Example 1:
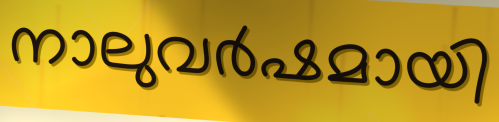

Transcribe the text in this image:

നാലുവർഷമായി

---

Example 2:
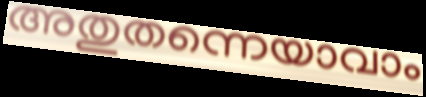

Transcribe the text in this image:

അതുതന്നെയാവാം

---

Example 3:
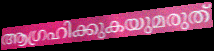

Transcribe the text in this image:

ആഗ്രഹിക്കുകയുമരുത്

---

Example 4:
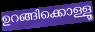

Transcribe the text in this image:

ഉറങ്ങിക്കൊള്ളൂ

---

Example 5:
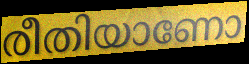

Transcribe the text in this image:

രീതിയാണോ